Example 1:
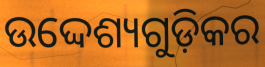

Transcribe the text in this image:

ଉଦ୍ଦେଶ୍ୟଗୁଡ଼ିକର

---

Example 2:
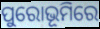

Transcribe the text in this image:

ପୁରୋଭୂମିରେ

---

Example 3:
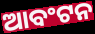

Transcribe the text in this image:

ଆବଂଟନ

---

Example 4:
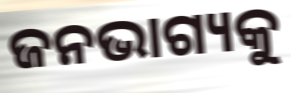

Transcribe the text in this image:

ଜନଭାଗ୍ୟକୁ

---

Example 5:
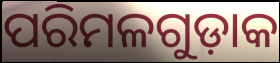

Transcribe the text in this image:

ପରିମଳଗୁଡ଼ାକ